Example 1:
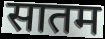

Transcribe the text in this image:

सातम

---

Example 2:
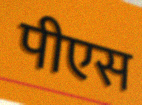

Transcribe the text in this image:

पीएस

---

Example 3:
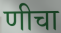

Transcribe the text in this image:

णीचा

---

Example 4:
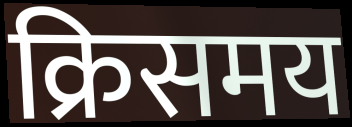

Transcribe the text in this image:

क्रिसमय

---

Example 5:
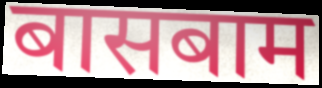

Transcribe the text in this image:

बासबाम